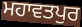
ਮਹਾਵਤਪੁਰ